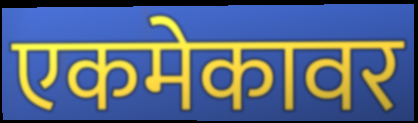
एकमेकावर